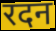
रदन